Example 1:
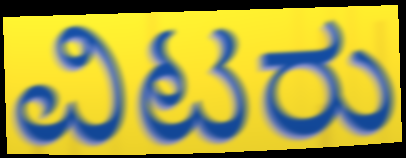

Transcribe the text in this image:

ವಿಟರು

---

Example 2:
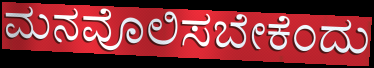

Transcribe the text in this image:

ಮನವೊಲಿಸಬೇಕೆಂದು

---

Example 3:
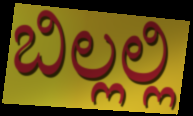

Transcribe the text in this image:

ಬಿಲ್ಲಲ್ಲಿ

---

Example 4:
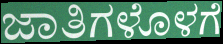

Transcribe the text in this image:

ಜಾತಿಗಳೊಳಗೆ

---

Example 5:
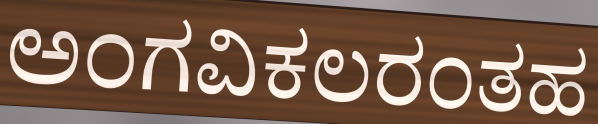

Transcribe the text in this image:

ಅಂಗವಿಕಲರಂತಹ